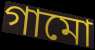
গামো